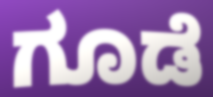
ಗೂಡೆ